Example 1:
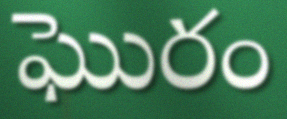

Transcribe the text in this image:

ఘొరం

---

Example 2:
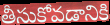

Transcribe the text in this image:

తీసుకోవడానికి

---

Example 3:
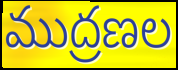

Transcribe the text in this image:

ముద్రణల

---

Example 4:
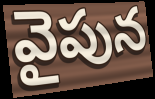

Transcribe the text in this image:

వైపున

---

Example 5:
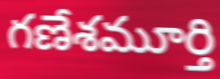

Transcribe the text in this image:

గణేశమూర్తి